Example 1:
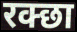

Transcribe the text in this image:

रक्छा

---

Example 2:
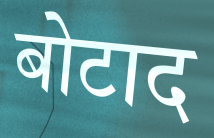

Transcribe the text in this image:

बोटाद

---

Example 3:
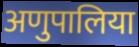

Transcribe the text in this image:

अणुपालिया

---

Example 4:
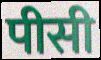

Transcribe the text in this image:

पीसी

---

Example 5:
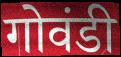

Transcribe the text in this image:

गोवंडी